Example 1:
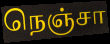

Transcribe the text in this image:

நெஞ்சா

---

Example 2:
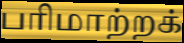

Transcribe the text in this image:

பரிமாற்றக்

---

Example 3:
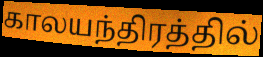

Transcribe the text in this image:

காலயந்திரத்தில்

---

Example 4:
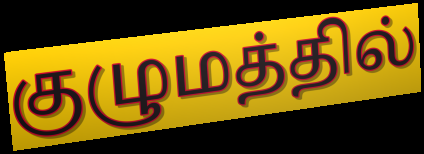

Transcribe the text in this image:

குழுமத்தில்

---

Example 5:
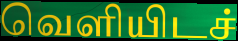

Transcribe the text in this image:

வெளியிடச்